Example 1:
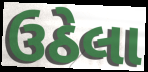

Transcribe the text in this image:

ઉઠેલા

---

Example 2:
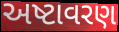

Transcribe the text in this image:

અષ્ટાવરણ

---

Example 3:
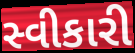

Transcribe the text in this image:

સ્વીકારી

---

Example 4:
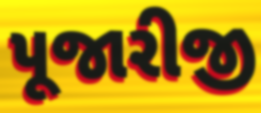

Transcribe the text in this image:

પૂજારીજી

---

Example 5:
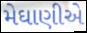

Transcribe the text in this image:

મેઘાણીએ